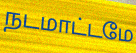
நடமாட்டமே